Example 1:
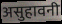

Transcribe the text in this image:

असुहावनी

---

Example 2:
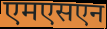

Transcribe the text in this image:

एमएसएन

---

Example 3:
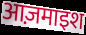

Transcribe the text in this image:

आज़माइश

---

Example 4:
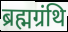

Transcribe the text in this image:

ब्रह्मग्रंथि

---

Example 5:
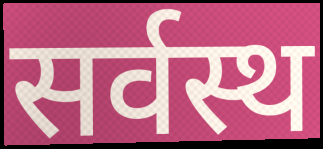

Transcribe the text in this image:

सर्वस्थ